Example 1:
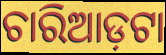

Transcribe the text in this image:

ଚାରିଆଡ଼ଟା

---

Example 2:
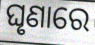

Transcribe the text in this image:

ଘୃଣାରେ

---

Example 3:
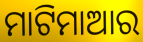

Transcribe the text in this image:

ମାଟିମାଆର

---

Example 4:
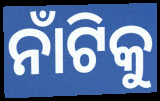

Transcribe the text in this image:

ନାଁଟିକୁ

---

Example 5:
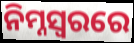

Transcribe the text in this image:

ନିମ୍ନସ୍ୱରରେ